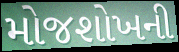
મોજશોખની